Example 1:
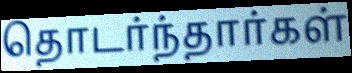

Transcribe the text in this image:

தொடர்ந்தார்கள்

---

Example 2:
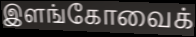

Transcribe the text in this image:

இளங்கோவைக்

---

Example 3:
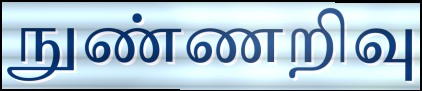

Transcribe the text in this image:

நுண்ணறிவு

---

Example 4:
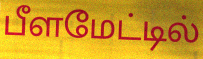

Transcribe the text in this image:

பீளமேட்டில்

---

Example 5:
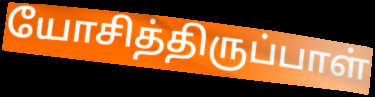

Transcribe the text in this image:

யோசித்திருப்பாள்